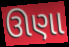
ઊણા